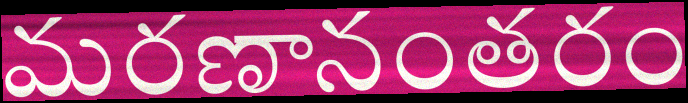
మరణానంతరం